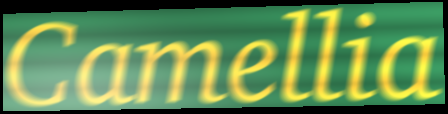
Camellia